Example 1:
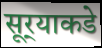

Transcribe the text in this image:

सूर्याकडे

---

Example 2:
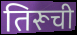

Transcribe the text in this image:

तिरूची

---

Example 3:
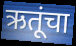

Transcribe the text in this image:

ऋतूंचा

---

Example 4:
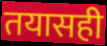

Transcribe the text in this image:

तयासही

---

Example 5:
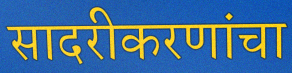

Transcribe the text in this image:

सादरीकरणांचा